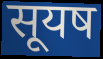
सूयष